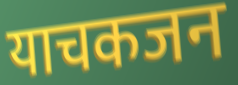
याचकजन